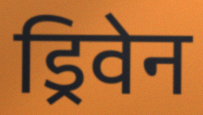
ड्रिवेन